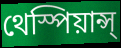
থেস্পিয়ান্স্